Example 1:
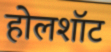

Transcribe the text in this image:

होलशॉट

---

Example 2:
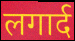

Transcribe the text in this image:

लगार्द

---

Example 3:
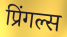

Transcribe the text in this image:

प्रिंगल्स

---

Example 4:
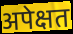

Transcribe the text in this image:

अपेक्षत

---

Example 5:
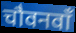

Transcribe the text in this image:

चौवनवाँ